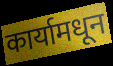
कार्यामधून